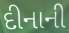
દીનાની